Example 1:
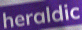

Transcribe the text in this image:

heraldic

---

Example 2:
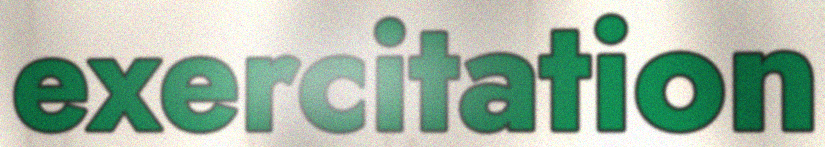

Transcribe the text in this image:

exercitation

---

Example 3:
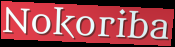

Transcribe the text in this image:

Nokoriba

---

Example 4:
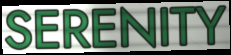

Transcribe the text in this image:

SERENITY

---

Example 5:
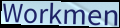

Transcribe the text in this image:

Workmen